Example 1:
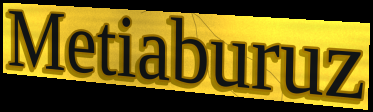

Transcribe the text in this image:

Metiaburuz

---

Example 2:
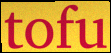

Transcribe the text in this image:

tofu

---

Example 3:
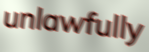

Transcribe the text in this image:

unlawfully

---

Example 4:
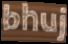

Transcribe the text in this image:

bhuj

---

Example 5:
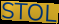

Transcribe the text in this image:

STOL